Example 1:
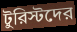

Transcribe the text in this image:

টুরিস্টদের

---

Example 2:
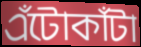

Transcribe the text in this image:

এঁটোকাঁটা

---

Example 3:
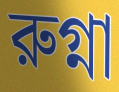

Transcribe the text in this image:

রুগ্না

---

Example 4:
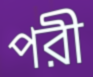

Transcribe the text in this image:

পরী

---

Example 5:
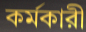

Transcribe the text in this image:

কর্মকারী